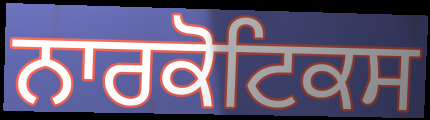
ਨਾਰਕੋਟਿਕਸ